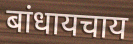
बांधायचाय